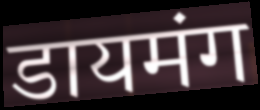
डायमंग